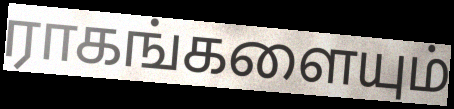
ராகங்களையும்